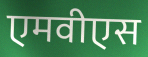
एमवीएस